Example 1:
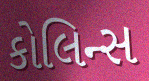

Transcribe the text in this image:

કોલિન્સ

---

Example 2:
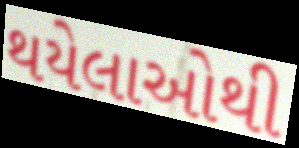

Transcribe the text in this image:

થયેલાઓથી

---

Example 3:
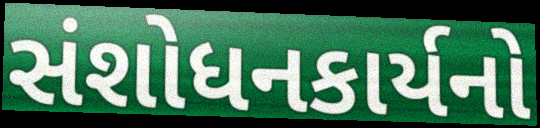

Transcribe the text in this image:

સંશોધનકાર્યનો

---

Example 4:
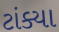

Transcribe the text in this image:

ટાંક્યા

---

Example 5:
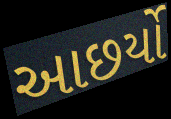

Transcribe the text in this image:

આછર્યો